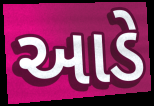
આડે